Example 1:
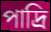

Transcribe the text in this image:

পাদ্রি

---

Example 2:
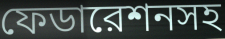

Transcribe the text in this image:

ফেডারেশনসহ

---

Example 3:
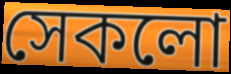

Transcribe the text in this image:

সেকলো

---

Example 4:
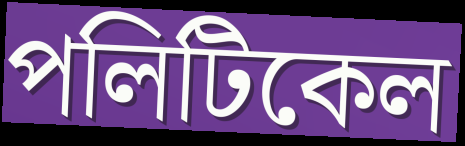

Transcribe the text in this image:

পলিটিকেল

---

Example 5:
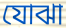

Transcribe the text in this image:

যোঝা